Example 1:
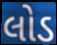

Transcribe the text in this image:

લોડ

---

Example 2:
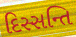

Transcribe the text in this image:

દિસ્સન્તિ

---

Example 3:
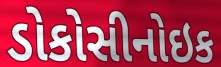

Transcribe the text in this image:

ડોકોસીનોઇક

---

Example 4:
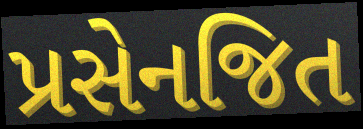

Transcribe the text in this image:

પ્રસેનજિત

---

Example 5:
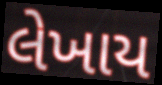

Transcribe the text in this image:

લેખાય